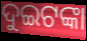
ଦୁଇଟଙ୍କା